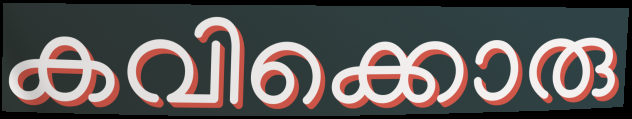
കവിക്കൊരു